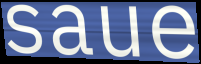
saue